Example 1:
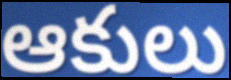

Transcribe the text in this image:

ఆకులు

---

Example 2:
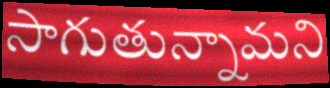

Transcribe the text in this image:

సాగుతున్నామని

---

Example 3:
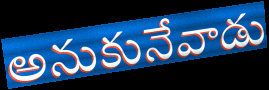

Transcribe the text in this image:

అనుకునేవాడు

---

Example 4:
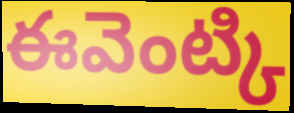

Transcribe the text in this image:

ఈవెంట్కి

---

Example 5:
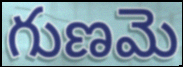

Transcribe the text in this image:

గుణమె